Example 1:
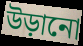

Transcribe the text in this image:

উড়ানো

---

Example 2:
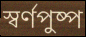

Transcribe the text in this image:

স্বর্ণপুষ্প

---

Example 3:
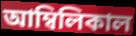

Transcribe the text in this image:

আম্বিলিকাল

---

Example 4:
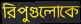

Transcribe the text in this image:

রিপুগুলোকে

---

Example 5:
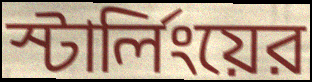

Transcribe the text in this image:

স্টার্লিংয়ের